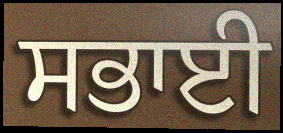
ਸਭਾਈ